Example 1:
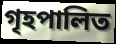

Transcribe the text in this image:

গৃহপালিত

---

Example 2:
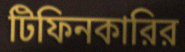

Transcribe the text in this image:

টিফিনকারির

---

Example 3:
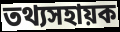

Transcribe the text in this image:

তথ্যসহায়ক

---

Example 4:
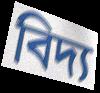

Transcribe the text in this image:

বিদ্য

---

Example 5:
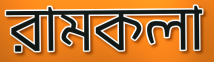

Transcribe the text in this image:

রামকলা